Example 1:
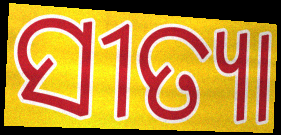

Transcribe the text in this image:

ସୀତ୍ୟା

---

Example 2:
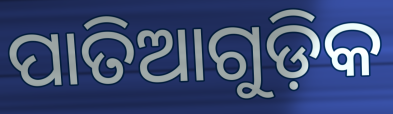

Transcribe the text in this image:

ପାତିଆଗୁଡ଼ିକ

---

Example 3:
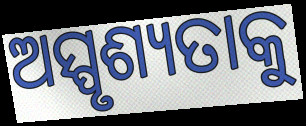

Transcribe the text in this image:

ଅସ୍ପୃଶ୍ୟତାକୁ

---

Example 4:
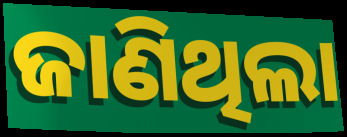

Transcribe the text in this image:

ଜାଣିଥିଲା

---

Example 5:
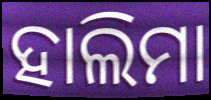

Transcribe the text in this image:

ହାଲିମା